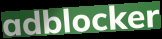
adblocker